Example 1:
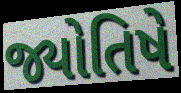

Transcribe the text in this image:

જ્યોતિષે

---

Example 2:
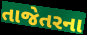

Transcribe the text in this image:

તાજેતરના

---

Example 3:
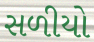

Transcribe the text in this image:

સળીયો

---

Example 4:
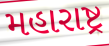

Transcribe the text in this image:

મહારાષ્ટ્ર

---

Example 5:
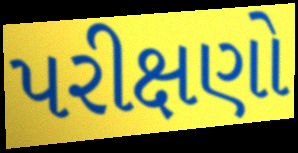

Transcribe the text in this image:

પરીક્ષણો